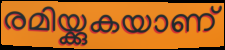
രമിയ്ക്കുകയാണ്